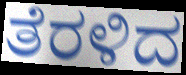
ತೆರಳಿದ